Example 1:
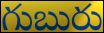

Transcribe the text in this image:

గుబురు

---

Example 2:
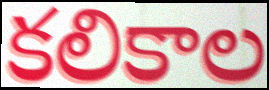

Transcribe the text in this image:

కలికాల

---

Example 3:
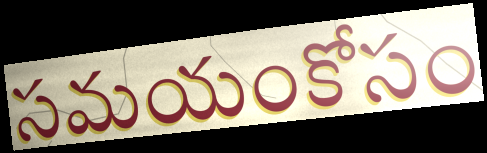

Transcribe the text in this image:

సమయంకోసం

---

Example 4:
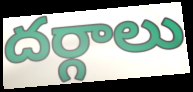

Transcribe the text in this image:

దర్గాలు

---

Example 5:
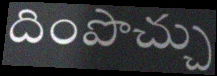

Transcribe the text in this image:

దింపొచ్చు